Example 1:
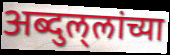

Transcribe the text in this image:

अब्दुल्लांच्या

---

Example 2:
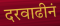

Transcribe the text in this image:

दरवाढीनं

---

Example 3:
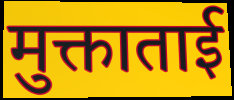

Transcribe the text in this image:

मुक्ताताई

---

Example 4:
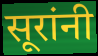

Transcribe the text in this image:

सूरांनी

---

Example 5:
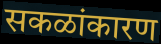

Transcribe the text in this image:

सकळांकारण